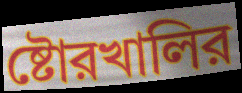
ষ্টোরখালির